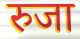
रुजा